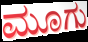
ಮೂಗು